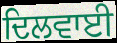
ਦਿਲਵਾਈ